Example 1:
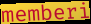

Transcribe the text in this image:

memberi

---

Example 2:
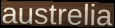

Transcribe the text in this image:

austrelia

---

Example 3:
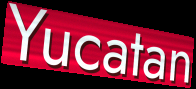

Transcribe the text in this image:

Yucatan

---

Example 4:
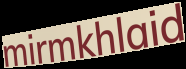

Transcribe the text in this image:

mirmkhlaid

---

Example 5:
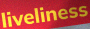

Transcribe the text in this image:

liveliness